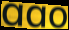
aao